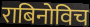
राबिनोविच